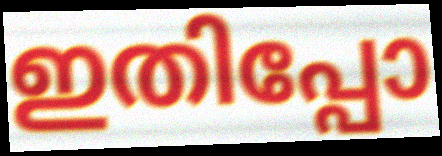
ഇതിപ്പോ